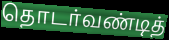
தொடர்வண்டித்